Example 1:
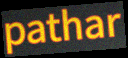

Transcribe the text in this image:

pathar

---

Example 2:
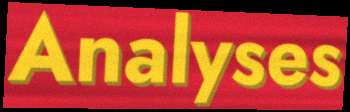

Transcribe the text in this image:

Analyses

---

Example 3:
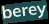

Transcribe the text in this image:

berey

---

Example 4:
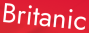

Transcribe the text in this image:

Britanic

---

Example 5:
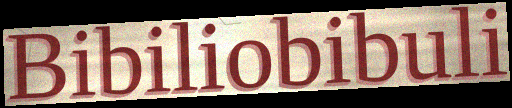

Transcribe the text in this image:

Bibiliobibuli